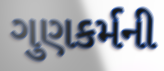
ગુણકર્મની